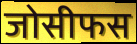
जोसीफस